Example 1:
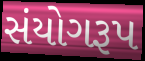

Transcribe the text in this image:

સંયોગરૂપ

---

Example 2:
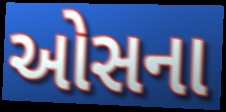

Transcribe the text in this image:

ઓસના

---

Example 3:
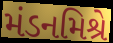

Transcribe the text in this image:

મંડનમિશ્રે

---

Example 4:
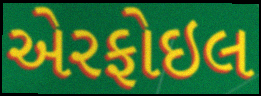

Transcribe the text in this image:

એરફોઇલ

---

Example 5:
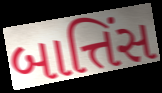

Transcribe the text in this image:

બાત્તિંસ